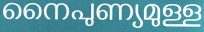
നൈപുണ്യമുള്ള